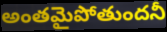
అంతమైపోతుందనీ